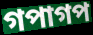
গপাগপ